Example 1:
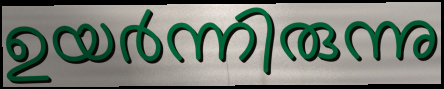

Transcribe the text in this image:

ഉയർന്നിരുന്നു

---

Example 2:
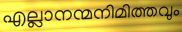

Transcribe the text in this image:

എല്ലാനന്മനിമിത്തവും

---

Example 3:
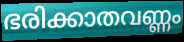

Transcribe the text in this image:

ഭരിക്കാതവണ്ണം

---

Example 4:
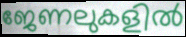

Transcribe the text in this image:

ജേണലുകളിൽ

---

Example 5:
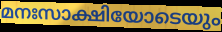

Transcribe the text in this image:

മനഃസാക്ഷിയോടെയും